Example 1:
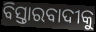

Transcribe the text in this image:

ବିସ୍ତାରବାଦୀକୁ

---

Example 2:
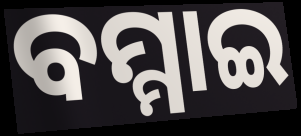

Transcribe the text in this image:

ବମ୍ମାଇ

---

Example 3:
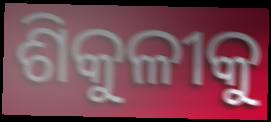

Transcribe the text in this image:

ଶିକୁଳୀକୁ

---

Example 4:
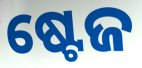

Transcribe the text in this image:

ଷ୍ଟେଜ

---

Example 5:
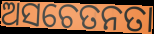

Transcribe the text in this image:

ଅସଚେତନତା